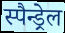
स्पैन्ड्रेल